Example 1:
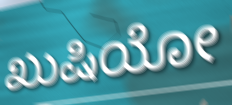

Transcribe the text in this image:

ಖುಷಿಯೋ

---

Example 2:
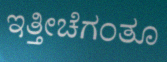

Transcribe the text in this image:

ಇತ್ತೀಚೆಗಂತೂ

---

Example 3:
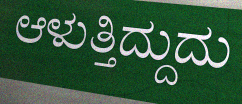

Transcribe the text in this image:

ಆಳುತ್ತಿದ್ದುದು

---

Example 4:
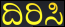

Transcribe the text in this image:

ದಿರಿಸಿ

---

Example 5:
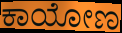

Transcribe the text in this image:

ಕಾಯೋಣ